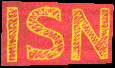
ISN